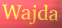
Wajda